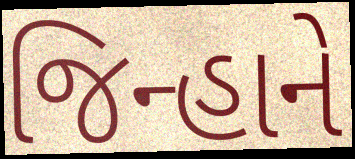
જિન્હાને